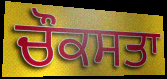
ਚੌਕਸਤਾ